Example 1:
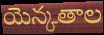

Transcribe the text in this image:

యెన్కతాల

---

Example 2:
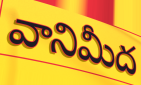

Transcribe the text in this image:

వానిమీద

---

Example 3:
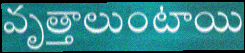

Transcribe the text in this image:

వృత్తాలుంటాయి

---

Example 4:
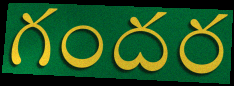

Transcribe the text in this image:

గందర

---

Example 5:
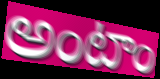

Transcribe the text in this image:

అంటాం